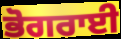
ਭੋਗਰਾਈ